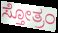
ಸ್ತೋತ್ರಂ